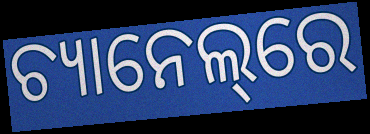
ଚ୍ୟାନେଲ୍‌ରେ